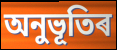
অনুভূতিৰ